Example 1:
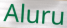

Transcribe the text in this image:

Aluru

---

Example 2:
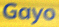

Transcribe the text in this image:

Gayo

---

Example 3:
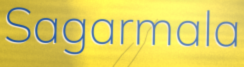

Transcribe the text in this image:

Sagarmala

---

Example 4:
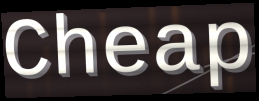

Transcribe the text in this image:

Cheap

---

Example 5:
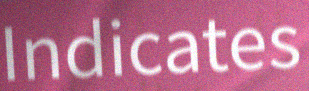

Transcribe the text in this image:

Indicates